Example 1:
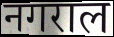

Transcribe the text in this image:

नगराल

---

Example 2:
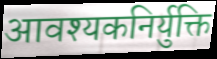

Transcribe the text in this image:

आवश्यकनिर्युक्ति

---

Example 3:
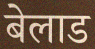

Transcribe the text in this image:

बेलाड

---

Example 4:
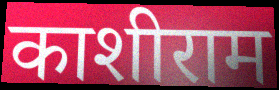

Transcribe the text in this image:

काशीराम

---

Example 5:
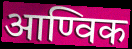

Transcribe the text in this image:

आण्विक